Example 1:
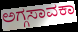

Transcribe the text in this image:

ಅಗ್ಗಸಾವಕಾ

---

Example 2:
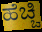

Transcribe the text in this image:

ಹೆಚ್ಚಿ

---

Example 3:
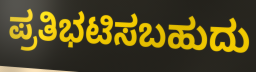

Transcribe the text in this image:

ಪ್ರತಿಭಟಿಸಬಹುದು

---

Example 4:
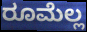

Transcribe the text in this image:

ರೂಮೆಲ್ಲ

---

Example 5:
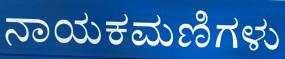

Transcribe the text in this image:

ನಾಯಕಮಣಿಗಳು